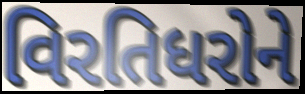
વિરતિધરોને